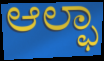
ಆಲ್ಫಾ